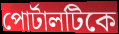
পোর্টালটিকে